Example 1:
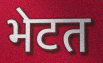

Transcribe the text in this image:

भेटत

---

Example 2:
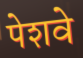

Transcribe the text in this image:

पेशवे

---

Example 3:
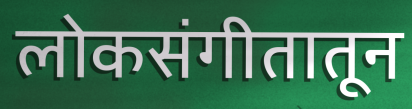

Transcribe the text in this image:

लोकसंगीतातून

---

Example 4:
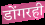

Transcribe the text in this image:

डोंगरही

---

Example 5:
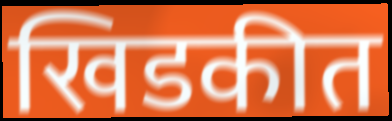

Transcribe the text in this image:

खिडकीत